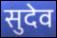
सुदेव